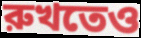
রুখতেও